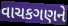
વાચકગણને